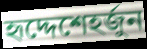
হৃদ্দেশেহর্জুন